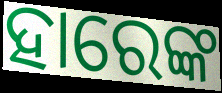
ହାରେଙ୍କ